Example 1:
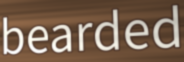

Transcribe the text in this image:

bearded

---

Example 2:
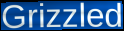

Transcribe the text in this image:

Grizzled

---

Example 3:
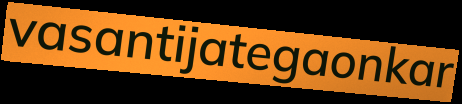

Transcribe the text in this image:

vasantijategaonkar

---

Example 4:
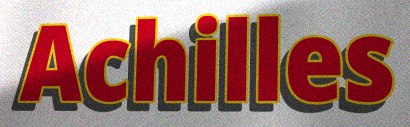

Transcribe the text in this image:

Achilles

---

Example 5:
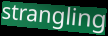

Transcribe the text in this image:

strangling